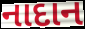
નાદાન